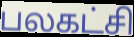
பலகட்சி